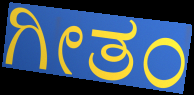
ಗೀತಂ